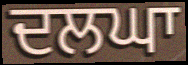
ਦਲਘਾ